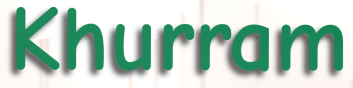
Khurram